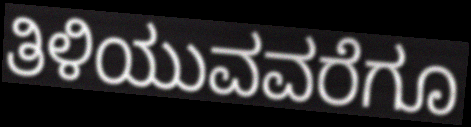
ತಿಳಿಯುವವರೆಗೂ